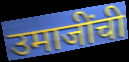
उमाजींची